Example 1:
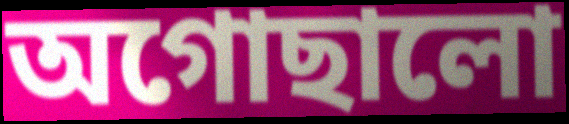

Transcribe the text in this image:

অগোছালো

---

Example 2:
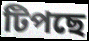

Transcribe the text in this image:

টিপছে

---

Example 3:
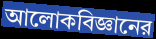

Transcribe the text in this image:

আলোকবিজ্ঞানের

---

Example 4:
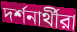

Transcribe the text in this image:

দর্শনার্থীরা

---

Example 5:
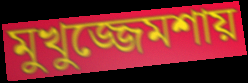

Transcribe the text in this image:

মুখুজ্জেমশায়